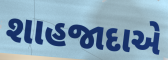
શાહજાદાએ